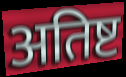
अतिष्ट